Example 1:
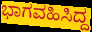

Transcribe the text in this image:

ಭಾಗವಹಿಸಿದ್ದ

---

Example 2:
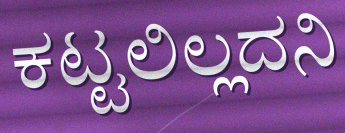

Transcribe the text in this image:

ಕಟ್ಟಲಿಲ್ಲದನಿ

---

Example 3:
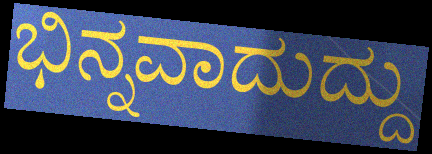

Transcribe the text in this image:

ಭಿನ್ನವಾದುದ್ದು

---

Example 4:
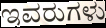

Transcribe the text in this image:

ಇವರುಗಳು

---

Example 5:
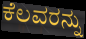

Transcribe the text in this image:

ಕೆಲವರನ್ನು